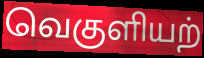
வெகுளியற்